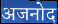
अजनोद